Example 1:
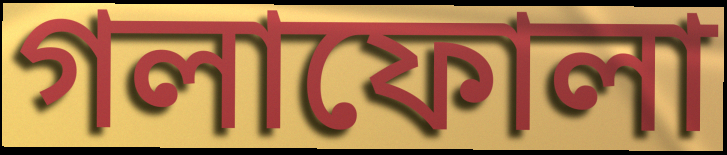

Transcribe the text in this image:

গলাফোলা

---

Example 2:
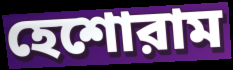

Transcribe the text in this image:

হেশোরাম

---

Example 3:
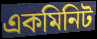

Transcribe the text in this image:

একমিনিট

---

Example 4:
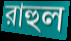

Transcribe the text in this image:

রাহুল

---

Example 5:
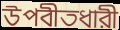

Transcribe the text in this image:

উপবীতধারী